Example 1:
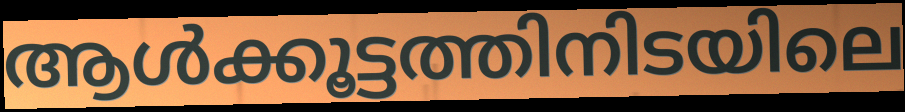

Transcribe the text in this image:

ആൾക്കൂട്ടത്തിനിടയിലെ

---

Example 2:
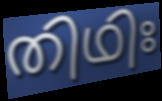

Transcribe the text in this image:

തിഥിഃ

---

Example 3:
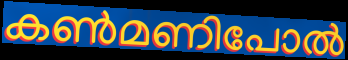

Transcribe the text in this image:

കൺമണിപോൽ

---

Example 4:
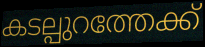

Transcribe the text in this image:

കടല്പുറത്തേക്ക്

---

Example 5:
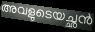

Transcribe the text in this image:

അവളുടെയച്ഛൻ